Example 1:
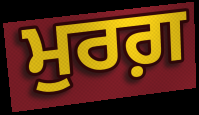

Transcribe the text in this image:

ਮੁਰਗ਼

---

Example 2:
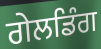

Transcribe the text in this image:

ਗੇਲਡਿੰਗ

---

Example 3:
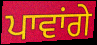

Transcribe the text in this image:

ਪਾਵਾਂਗੇ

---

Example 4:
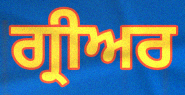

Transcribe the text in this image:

ਗ੍ਰੀਅਰ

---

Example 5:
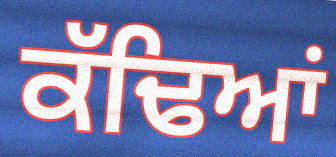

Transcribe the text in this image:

ਕੱਢਿਆਂ